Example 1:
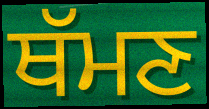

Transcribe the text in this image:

ਥੱਮਣ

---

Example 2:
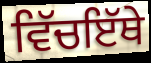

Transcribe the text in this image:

ਵਿੱਚਇੱਥੇ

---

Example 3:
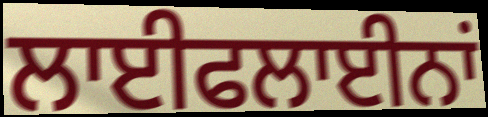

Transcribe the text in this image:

ਲਾਈਫਲਾਈਨਾਂ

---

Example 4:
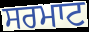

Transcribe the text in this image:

ਸਰਮਾਟ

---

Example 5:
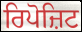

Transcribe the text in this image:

ਰਿਪੋਜ਼ਿਟ